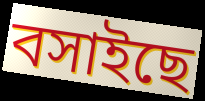
বসাইছে